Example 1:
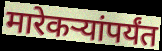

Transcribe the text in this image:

मारेकऱ्यांपर्यंत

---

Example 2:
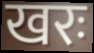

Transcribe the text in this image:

खरः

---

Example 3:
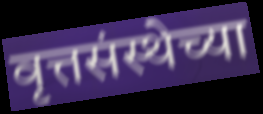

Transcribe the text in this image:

वृत्तसंस्थेच्या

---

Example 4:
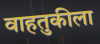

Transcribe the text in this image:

वाहतुकीला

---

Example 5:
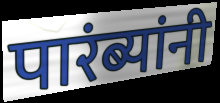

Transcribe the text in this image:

पारंब्यांनी